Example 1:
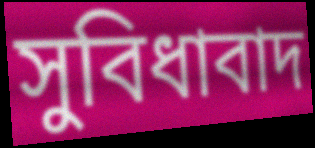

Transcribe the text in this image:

সুবিধাবাদ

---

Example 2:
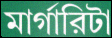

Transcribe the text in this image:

মার্গারিটা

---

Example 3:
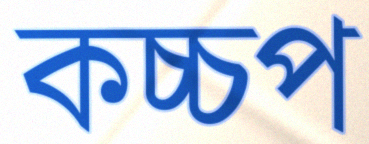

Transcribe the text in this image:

কচ্চপ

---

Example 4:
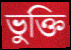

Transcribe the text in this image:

ভুক্তি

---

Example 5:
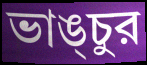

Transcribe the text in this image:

ভাঙ্চুর